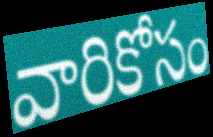
వారికోసం